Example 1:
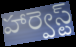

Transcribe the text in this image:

హార్వెస్ట్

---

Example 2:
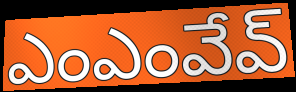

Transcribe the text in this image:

ఎంఎంవేవ్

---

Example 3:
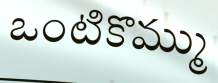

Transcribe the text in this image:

ఒంటికొమ్ము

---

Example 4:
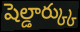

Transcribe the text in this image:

షెల్డార్క్కు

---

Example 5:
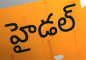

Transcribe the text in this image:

హైడల్